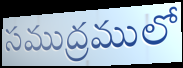
సముద్రములో